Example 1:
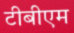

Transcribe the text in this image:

टीबीएम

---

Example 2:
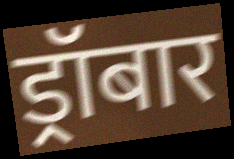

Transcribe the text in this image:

ड्रॉबार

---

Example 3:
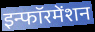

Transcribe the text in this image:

इन्फॉरमेंशन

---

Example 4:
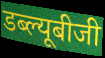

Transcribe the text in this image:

डब्ल्यूबीजी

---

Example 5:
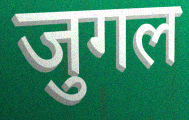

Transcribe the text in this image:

जुगल